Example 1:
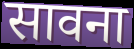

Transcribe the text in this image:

सावना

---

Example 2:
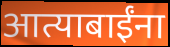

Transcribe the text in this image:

आत्याबाईंना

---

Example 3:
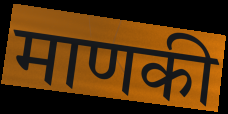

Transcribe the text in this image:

माणकी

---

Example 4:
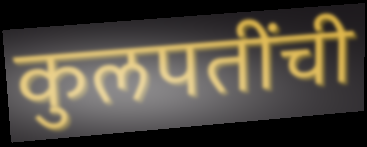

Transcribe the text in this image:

कुलपतींची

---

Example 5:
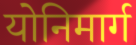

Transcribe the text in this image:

योनिमार्ग